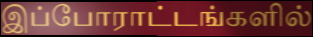
இப்போராட்டங்களில்